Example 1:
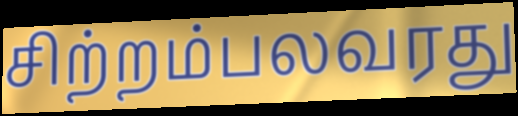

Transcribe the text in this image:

சிற்றம்பலவரது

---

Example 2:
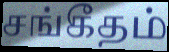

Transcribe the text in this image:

சங்கீதம்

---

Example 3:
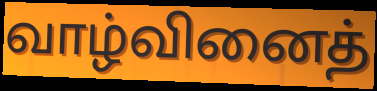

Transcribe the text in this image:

வாழ்வினைத்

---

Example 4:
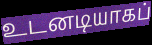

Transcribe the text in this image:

உடனடியாகப்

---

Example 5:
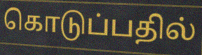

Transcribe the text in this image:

கொடுப்பதில்